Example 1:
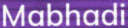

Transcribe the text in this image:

Mabhadi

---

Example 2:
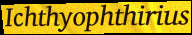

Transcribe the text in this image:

Ichthyophthirius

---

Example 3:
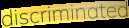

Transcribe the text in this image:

discriminated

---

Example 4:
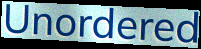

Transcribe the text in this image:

Unordered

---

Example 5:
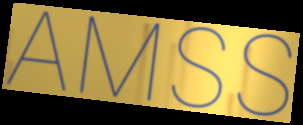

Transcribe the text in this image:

AMSS